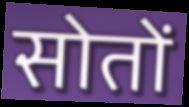
सोतों